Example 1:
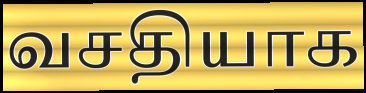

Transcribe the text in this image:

வசதியாக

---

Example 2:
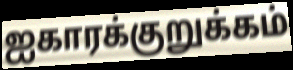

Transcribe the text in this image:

ஐகாரக்குறுக்கம்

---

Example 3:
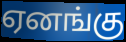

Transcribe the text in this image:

ஏனங்கு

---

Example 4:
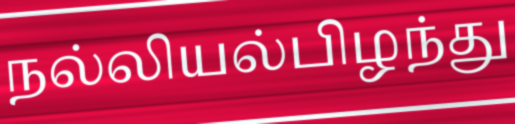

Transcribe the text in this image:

நல்லியல்பிழந்து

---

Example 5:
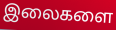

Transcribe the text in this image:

இலைகளை